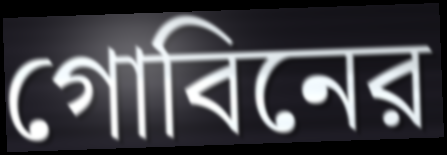
গোবিনের